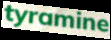
tyramine